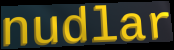
nudlar